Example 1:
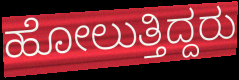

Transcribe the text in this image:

ಹೋಲುತ್ತಿದ್ದರು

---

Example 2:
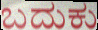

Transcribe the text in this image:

ಬದುಕು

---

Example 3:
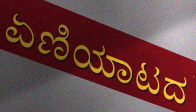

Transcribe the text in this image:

ಏಣಿಯಾಟದ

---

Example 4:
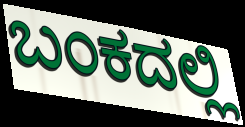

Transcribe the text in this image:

ಬಂಕದಲ್ಲಿ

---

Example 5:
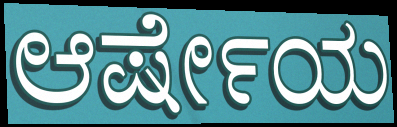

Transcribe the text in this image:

ಆರ್ಷೇಯ